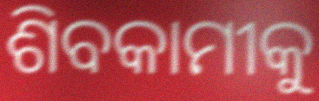
ଶିବକାମୀକୁ